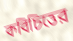
কবিচিত্তের